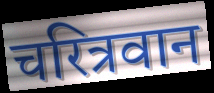
चरित्रवान